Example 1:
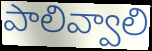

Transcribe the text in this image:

పాలివ్వాలి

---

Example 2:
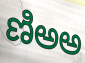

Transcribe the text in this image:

ణిఅఅ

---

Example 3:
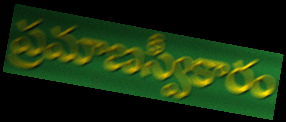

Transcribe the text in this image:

ప్రమాణస్వీకారం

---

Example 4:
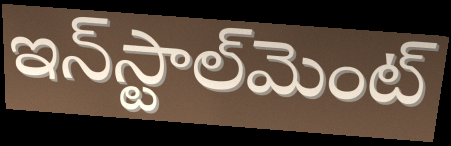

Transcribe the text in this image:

ఇన్‌స్టాల్‌మెంట్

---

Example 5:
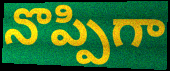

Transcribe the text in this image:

నొప్పిగా